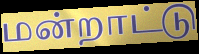
மன்றாட்டு